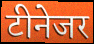
टीनेजर